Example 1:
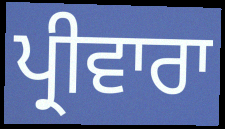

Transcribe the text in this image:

ਪ੍ਰੀਵਾਰਾ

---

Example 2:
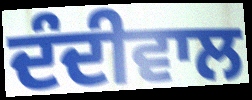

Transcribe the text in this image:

ਦੰਦੀਵਾਲ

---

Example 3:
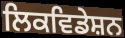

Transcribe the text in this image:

ਲਿਕਵਿਡੇਸ਼ਨ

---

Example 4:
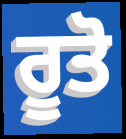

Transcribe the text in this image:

ਰੂਤੋ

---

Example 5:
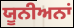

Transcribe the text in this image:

ਯੂਨੀਅਨਾਂ